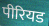
पीरियड